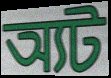
অ্যট